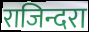
राजिन्दरा